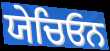
ਯੇਚਿਓਨ